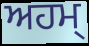
ਅਹਮ੍